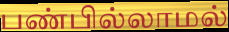
பண்பில்லாமல்